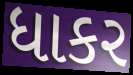
ધાકર